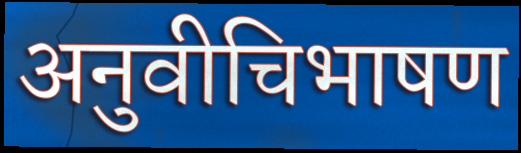
अनुवीचिभाषण